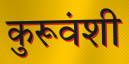
कुरूवंशी